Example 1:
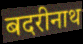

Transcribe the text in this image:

बदरीनाथ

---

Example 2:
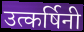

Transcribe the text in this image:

उत्कर्षिनी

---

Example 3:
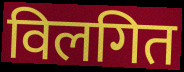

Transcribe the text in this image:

विलगित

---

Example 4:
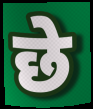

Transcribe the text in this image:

छे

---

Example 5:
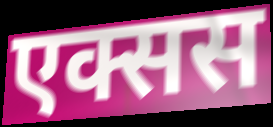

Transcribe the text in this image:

एक्सस